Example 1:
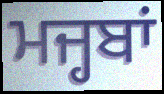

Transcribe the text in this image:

ਮਜ੍ਹਬਾਂ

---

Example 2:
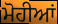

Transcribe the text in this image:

ਮੋਹੀਆਂ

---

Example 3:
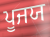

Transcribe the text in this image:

ਪੂਜਯ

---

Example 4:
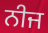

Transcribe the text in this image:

ਨੀਜ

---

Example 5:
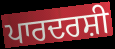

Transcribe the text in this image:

ਪਾਰਦਰਸ਼ੀ